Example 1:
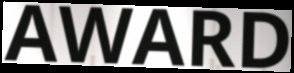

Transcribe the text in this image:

AWARD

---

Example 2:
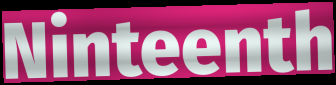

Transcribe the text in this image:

Ninteenth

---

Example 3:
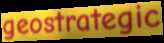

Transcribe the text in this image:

geostrategic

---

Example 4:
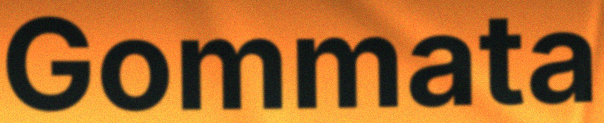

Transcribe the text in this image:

Gommata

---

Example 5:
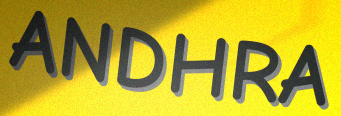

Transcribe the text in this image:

ANDHRA